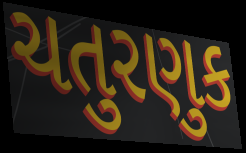
ચતુરણુક